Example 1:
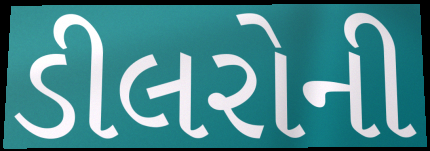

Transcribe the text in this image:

ડીલરોની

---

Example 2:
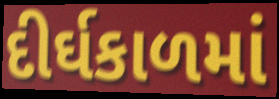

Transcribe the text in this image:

દીર્ઘકાળમાં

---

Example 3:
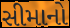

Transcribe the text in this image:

સીમાનો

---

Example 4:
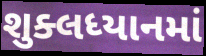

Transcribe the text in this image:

શુક્લધ્યાનમાં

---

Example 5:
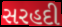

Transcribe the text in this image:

સરહદી